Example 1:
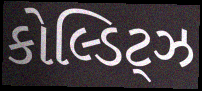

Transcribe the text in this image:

કોલ્ડિટ્ઝ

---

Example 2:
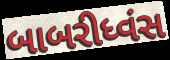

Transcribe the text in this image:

બાબરીધ્વંસ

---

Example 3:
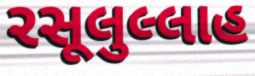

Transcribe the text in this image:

રસૂલુલ્લાહ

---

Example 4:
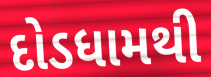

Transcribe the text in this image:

દોડધામથી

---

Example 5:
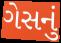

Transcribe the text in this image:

ગેસનું